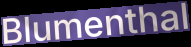
Blumenthal